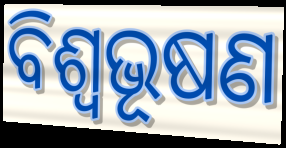
ବିଶ୍ୱଭୂଷଣ